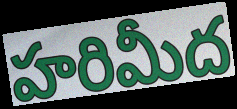
హరిమీద